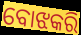
ବୋଝକରି